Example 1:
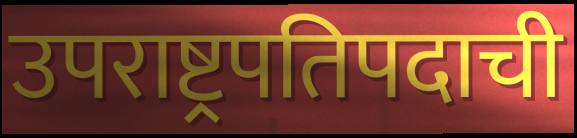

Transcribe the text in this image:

उपराष्ट्रपतिपदाची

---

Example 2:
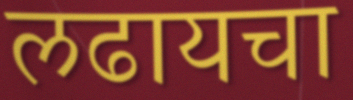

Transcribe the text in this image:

लढायचा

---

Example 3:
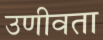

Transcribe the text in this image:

उणीवता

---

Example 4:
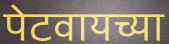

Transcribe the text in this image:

पेटवायच्या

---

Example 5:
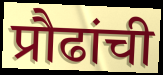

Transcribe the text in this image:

प्रौढांची